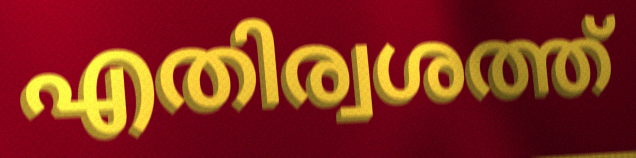
എതിര്വശത്ത്